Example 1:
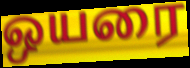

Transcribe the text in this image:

ஒயரை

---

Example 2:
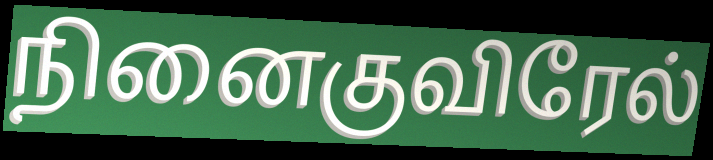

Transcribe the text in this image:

நினைகுவிரேல்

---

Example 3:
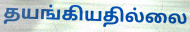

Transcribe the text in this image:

தயங்கியதில்லை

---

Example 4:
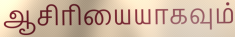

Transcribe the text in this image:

ஆசிரியையாகவும்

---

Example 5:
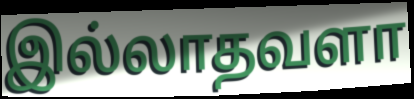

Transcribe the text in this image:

இல்லாதவளா